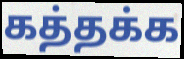
கத்தக்க